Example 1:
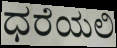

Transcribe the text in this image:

ಧರೆಯಲಿ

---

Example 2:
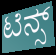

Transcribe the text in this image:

ಟೆನ್ಸ್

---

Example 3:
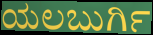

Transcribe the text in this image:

ಯಲಬುರ್ಗಿ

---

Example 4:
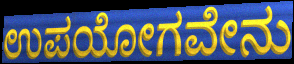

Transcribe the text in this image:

ಉಪಯೋಗವೇನು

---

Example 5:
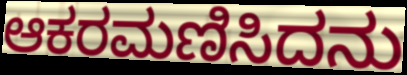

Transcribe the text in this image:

ಆಕರಮಣಿಸಿದನು